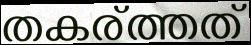
തകര്ത്തത്